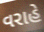
વરાહે